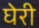
घेरी